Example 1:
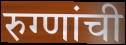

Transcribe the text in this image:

रुग्‍णांची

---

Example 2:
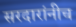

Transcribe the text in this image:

सरदारांनीच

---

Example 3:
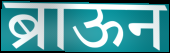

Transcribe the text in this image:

ब्राऊन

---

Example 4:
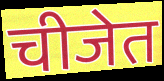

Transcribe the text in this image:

चीजेत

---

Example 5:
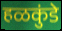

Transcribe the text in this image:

हळकुंडे